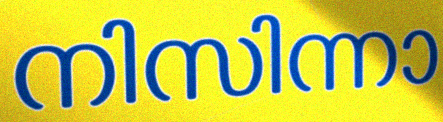
നിസിന്നാ